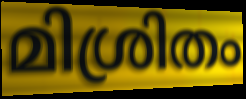
മിശ്രിതം